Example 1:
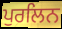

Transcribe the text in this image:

ਪੁਰਲਿਨ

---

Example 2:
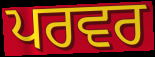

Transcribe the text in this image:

ਪਰਵਰ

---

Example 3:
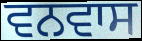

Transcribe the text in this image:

ਵਨਵਾਸ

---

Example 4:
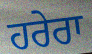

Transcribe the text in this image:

ਹਰੇਰਾ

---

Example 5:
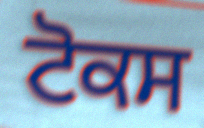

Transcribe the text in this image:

ਟੋਕਸ